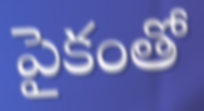
పైకంతో